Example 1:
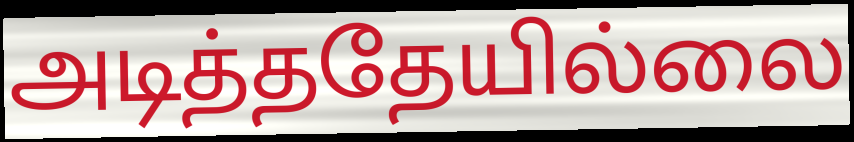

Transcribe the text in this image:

அடித்ததேயில்லை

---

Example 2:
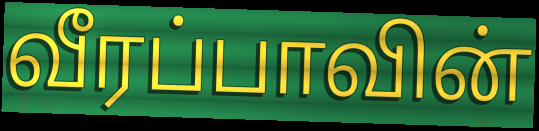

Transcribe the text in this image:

வீரப்பாவின்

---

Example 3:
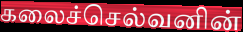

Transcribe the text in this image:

கலைச்செல்வனின்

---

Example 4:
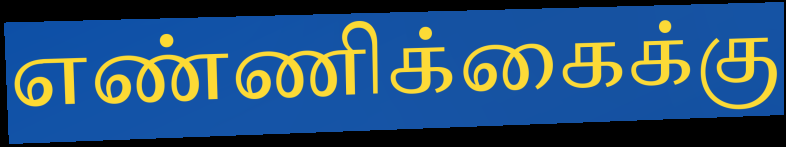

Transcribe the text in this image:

எண்ணிக்கைக்கு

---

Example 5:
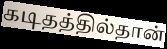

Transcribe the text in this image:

கடிதத்தில்தான்